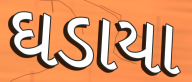
ઘડાયા